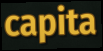
capita